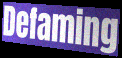
Defaming